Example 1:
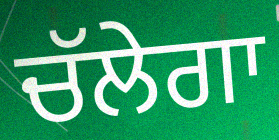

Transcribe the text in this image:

ਚੱਲੇਗਾ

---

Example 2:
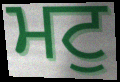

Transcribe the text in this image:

ਮਟੁ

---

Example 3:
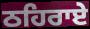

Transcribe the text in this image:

ਠਹਿਰਾਏ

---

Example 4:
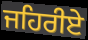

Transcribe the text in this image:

ਜਹਿਰੀਏ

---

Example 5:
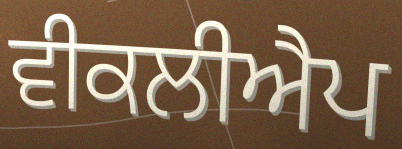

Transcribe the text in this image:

ਵੀਕਲੀਐਪ